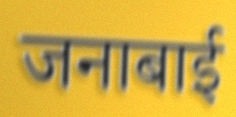
जनाबाई